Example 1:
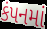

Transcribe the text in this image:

કંપનમાં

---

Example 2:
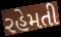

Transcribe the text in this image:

રહેમતી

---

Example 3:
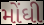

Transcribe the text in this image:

મોંઘી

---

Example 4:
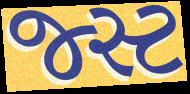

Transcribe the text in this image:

જ્સ્ટ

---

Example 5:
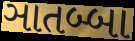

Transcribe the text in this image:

ઞાતબ્બા